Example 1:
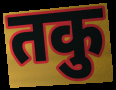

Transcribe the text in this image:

तकु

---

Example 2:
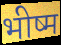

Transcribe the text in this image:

भीष्म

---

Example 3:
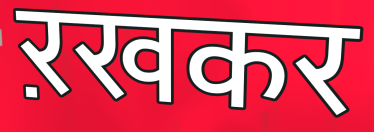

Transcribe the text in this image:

ऱखकर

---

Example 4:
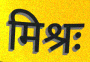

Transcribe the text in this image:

मिश्रः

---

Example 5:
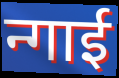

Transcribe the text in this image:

न्गाई